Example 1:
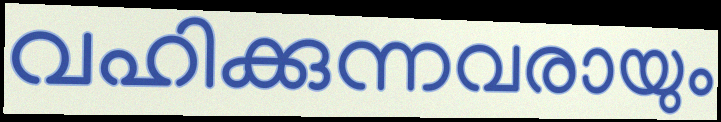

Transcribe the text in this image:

വഹിക്കുന്നവരായും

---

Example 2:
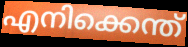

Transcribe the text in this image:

എനിക്കെന്ത്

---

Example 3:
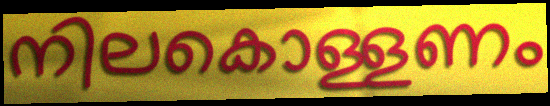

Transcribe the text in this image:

നിലകൊള്ളണം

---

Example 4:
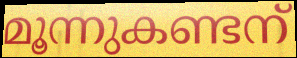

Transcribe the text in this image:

മൂന്നുകണ്ടന്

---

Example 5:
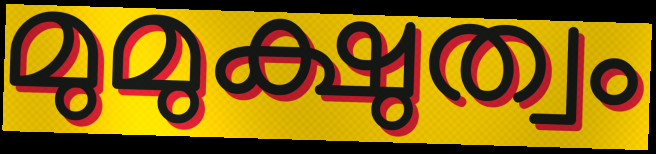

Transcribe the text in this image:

മുമുക്ഷുത്വം